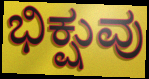
ಭಿಕ್ಷುವು